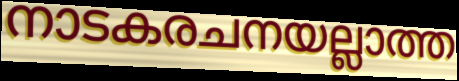
നാടകരചനയല്ലാത്ത